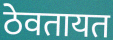
ठेवतायत